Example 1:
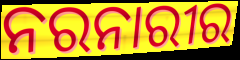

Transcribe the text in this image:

ନରନାରୀର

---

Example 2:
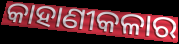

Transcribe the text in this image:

କାହାଣୀକଳାର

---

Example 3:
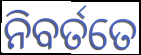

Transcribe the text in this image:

ନିବର୍ତତେ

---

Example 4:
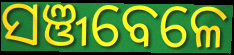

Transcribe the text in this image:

ସଞ୍ଜବେଳେ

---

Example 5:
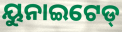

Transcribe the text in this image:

ୟୁନାଇଟେଡ୍